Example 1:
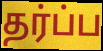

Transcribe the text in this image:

தர்ப்ப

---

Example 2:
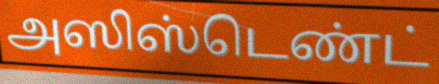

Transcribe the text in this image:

அஸிஸ்டெண்ட்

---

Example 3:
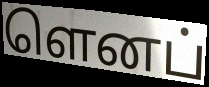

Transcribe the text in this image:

ளெனப்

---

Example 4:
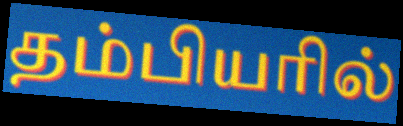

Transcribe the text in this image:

தம்பியரில்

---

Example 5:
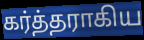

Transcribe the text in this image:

கர்த்தராகிய